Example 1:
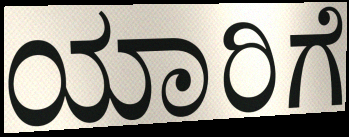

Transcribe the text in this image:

ಯಾರಿಗೆ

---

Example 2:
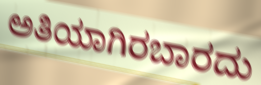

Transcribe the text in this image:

ಅತಿಯಾಗಿರಬಾರದು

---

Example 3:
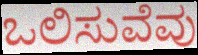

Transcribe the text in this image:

ಒಲಿಸುವೆವು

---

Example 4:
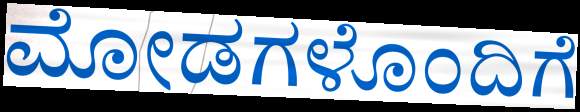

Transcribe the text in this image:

ಮೋಡಗಳೊಂದಿಗೆ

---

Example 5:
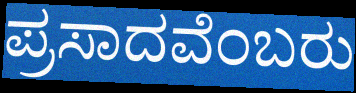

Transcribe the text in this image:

ಪ್ರಸಾದವೆಂಬರು